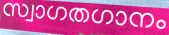
സ്വാഗതഗാനം